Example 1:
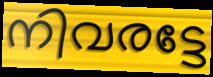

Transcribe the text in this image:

നിവരട്ടേ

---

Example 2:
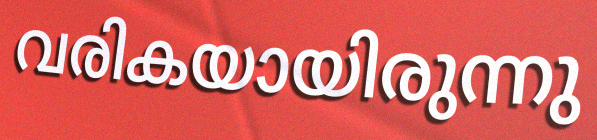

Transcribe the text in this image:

വരികയായിരുന്നു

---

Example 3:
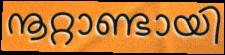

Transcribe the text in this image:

നൂറ്റാണ്ടായി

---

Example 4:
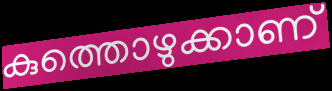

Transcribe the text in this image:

കുത്തൊഴുക്കാണ്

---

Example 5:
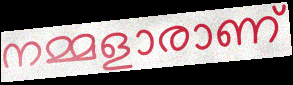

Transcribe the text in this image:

നമ്മളാരാണ്